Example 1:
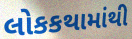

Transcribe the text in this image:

લોકકથામાંથી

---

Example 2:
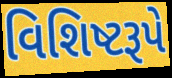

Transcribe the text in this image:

વિશિષ્ટરૂપે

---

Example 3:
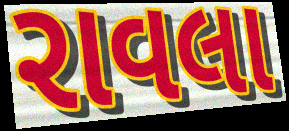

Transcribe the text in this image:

રાવલા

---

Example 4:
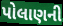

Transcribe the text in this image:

પોલાણની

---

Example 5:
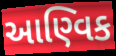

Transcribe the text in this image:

આણ્વિક